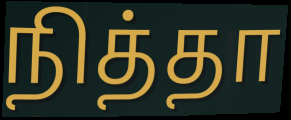
நித்தா